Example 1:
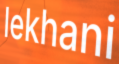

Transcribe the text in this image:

lekhani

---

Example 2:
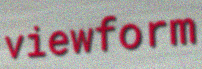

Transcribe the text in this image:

viewform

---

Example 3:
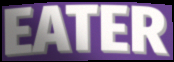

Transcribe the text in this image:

EATER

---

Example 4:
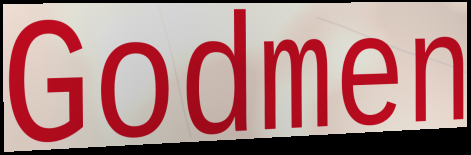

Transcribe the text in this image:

Godmen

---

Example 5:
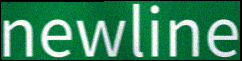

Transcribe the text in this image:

newline